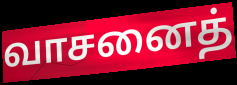
வாசனைத்